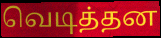
வெடித்தன